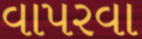
વાપરવા